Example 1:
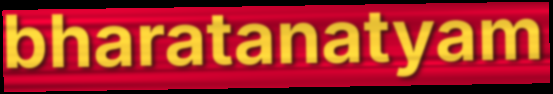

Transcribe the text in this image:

bharatanatyam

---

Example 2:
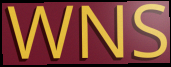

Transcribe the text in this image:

WNS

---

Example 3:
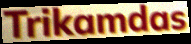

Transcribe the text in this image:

Trikamdas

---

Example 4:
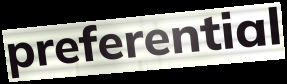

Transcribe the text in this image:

preferential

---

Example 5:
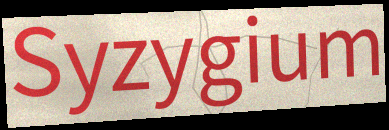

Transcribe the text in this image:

Syzygium